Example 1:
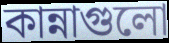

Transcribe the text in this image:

কান্নাগুলো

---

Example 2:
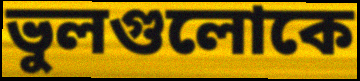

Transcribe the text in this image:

ভুলগুলোকে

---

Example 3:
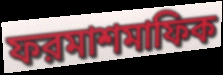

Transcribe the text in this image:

ফরমাশমাফিক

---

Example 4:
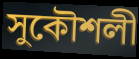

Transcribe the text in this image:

সুকৌশলী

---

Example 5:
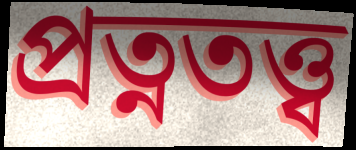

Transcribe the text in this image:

প্রত্নতত্ত্ব